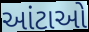
આંટાઓ